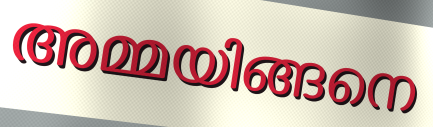
അമ്മയിങ്ങനെ